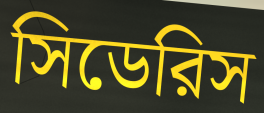
সিডেরিস